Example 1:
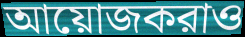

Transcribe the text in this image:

আয়োজকরাও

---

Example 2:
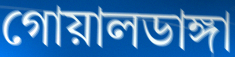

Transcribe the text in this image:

গোয়ালডাঙ্গা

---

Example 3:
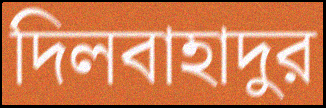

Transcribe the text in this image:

দিলবাহাদুর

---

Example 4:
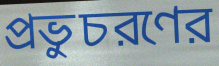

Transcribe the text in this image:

প্রভুচরণের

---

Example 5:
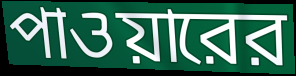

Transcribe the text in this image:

পাওয়ারের